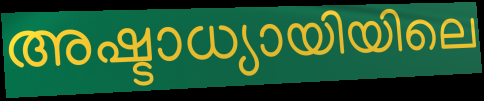
അഷ്ടാധ്യായിയിലെ